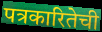
पत्रकारितेची